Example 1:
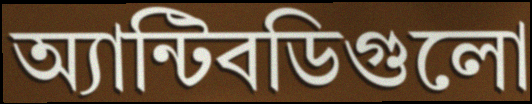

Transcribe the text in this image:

অ্যান্টিবডিগুলো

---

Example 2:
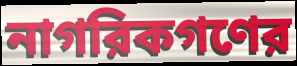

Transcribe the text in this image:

নাগরিকগণের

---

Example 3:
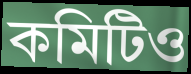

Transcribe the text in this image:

কমিটিও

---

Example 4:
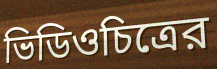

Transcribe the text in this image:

ভিডিওচিত্রের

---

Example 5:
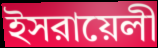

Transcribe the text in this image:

ইসরায়েলী